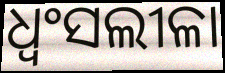
ଧ୍ବଂସଲୀଳା